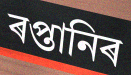
ৰপ্তানিৰ